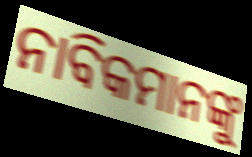
ନାବିକମାନଙ୍କୁ